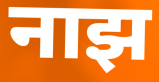
नाझ